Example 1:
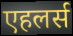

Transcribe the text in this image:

एहलर्स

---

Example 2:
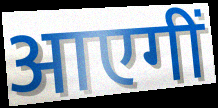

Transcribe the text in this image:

आएगीं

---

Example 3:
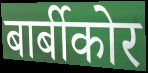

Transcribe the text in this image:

बार्बीकोर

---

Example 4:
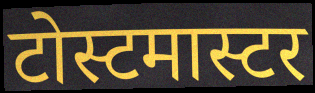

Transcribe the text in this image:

टोस्टमास्टर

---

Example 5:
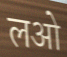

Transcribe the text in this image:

लओ